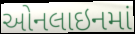
ઓનલાઇનમાં